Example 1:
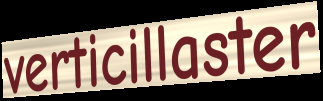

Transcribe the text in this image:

verticillaster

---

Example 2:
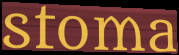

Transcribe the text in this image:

stoma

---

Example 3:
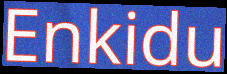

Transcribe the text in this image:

Enkidu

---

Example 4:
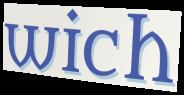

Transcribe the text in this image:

wich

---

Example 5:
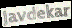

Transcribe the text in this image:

Javdekar